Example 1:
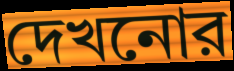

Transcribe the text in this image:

দেখনোর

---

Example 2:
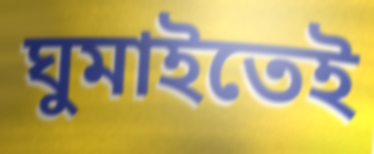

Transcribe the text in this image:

ঘুমাইতেই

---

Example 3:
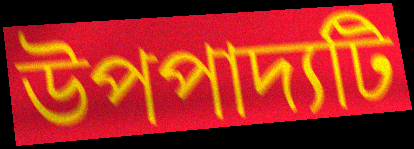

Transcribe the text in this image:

উপপাদ্যটি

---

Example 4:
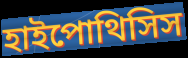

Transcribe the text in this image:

হাইপোথিসিস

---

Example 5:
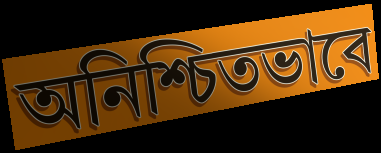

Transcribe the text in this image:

অনিশ্চিতভাবে